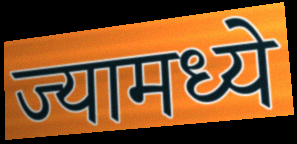
ज्यामध्ये